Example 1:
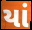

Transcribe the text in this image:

યાં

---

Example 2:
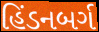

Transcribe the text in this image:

હિંડનબર્ગ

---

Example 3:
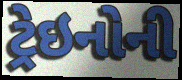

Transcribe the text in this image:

ટ્રેઇનોની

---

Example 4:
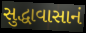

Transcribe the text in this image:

સુદ્ધાવાસાનં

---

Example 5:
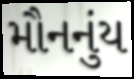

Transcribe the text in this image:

મૌનનુંય